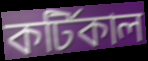
কর্টিকাল